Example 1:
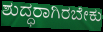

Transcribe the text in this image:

ಶುದ್ಧರಾಗಿರಬೇಕು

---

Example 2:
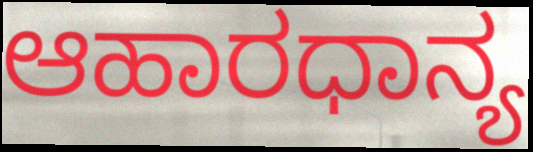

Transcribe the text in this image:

ಆಹಾರಧಾನ್ಯ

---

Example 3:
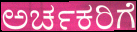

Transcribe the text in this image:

ಅರ್ಚಕರಿಗೆ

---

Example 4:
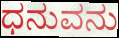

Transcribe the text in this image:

ಧನುವನು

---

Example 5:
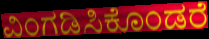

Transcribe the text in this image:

ವಿಂಗಡಿಸಿಕೊಂಡರೆ